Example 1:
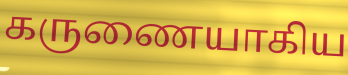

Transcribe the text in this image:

கருணையாகிய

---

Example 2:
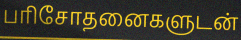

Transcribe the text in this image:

பரிசோதனைகளுடன்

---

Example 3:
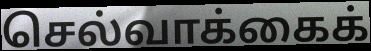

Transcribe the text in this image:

செல்வாக்கைக்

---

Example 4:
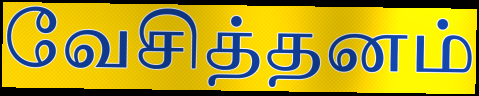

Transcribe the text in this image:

வேசித்தனம்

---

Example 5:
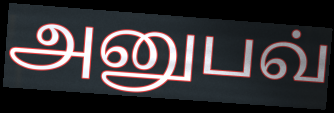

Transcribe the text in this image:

அனுபவ்